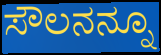
ಸೌಲನನ್ನೂ